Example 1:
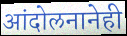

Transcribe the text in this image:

आंदोलनानेही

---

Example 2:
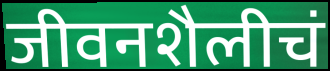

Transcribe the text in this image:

जीवनशैलीचं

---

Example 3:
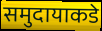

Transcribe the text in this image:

समुदायाकडे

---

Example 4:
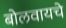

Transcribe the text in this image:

बोलवायचे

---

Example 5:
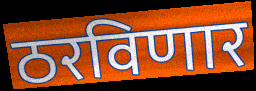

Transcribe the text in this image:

ठरविणार